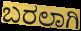
ಬರಲಾಗಿ